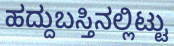
ಹದ್ದುಬಸ್ತಿನಲ್ಲಿಟ್ಟು